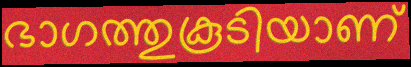
ഭാഗത്തുകൂടിയാണ്